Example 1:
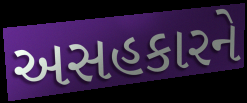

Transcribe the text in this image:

અસહકારને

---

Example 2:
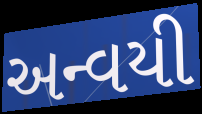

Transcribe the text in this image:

અન્વયી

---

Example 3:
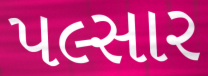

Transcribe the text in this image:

પલ્સાર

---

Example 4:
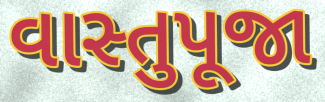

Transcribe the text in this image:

વાસ્તુપૂજા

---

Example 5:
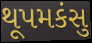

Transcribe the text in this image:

થૂપમકંસુ